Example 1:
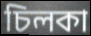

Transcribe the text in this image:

চিলকা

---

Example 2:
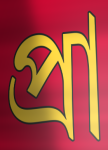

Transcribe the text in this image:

প্রা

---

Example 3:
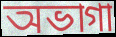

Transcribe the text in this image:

অভাগা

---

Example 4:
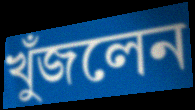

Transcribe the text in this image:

খুঁজলেন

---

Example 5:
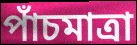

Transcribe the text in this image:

পাঁচমাত্রা